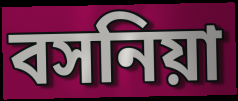
বসনিয়া